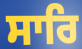
ਸਾਰਿ